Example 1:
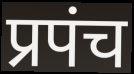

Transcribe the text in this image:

प्रपंच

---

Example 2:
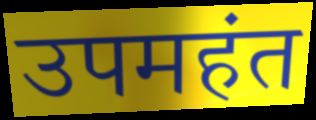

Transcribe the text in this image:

उपमहंत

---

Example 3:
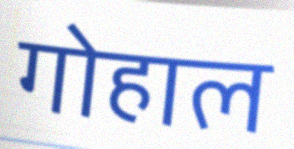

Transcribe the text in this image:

गोहाल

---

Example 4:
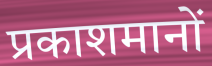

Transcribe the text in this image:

प्रकाशमानों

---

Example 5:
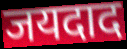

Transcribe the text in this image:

जयदाद